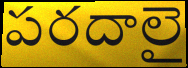
పరదాలై